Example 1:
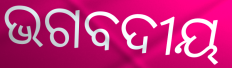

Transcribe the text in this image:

ଭଗବଦୀୟ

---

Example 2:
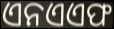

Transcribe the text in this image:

ଏନଏଏଫ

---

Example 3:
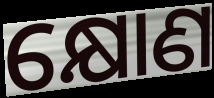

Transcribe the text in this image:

କ୍ଷୋଣ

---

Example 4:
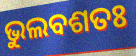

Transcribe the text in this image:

ଭୁଲବଶତଃ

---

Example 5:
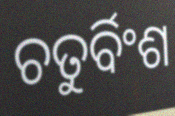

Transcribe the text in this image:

ଚତୁର୍ବିଂଶ